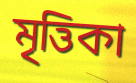
মৃত্তিকা